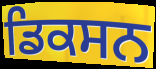
ਡਿਕਸਨ